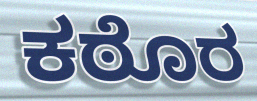
ಕಠೊರ